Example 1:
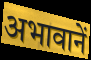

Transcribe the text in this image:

अभावानें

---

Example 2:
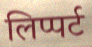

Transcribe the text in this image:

लिप्पर्ट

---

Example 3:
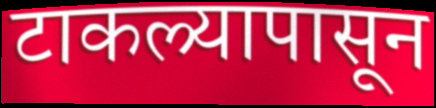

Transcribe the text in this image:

टाकल्यापासून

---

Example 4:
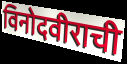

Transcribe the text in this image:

विनोदवीराची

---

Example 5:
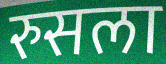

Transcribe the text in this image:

रुसला